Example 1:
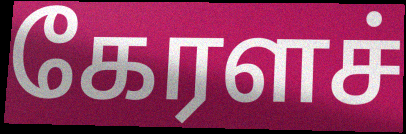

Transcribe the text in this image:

கேரளச்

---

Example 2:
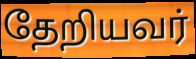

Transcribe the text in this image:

தேறியவர்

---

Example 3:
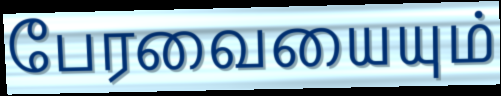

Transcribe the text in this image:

பேரவையையும்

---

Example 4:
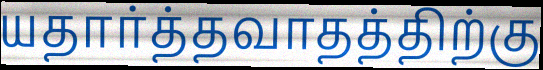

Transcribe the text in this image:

யதார்த்தவாதத்திற்கு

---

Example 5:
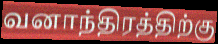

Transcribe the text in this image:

வனாந்திரத்திற்கு